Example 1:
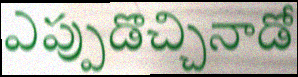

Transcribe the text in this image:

ఎప్పుడొచ్చినాడో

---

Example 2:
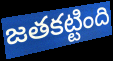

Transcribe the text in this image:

జతకట్టింది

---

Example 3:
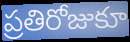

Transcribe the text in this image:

ప్రతిరోజుకూ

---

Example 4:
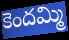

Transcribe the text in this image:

కెందమ్మి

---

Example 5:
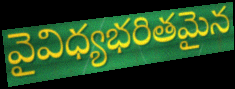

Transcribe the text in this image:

వైవిధ్యభరితమైన